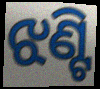
ଝଣ୍ଟି